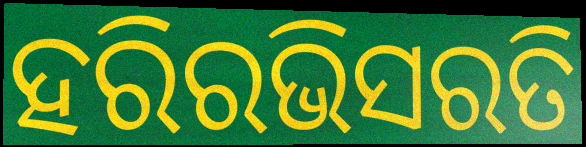
ହରିରଭିସରତି